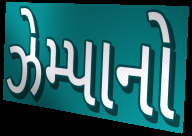
ઝેમ્પાનો